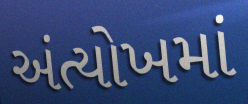
અંત્યોખમાં